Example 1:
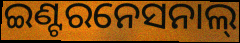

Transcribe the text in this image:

ଇଣ୍ଟରନେସନାଲ୍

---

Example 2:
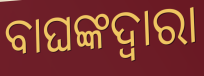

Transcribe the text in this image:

ବାଘଙ୍କଦ୍ୱାରା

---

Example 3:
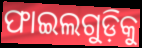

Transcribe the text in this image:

ଫାଇଲଗୁଡ଼ିକୁ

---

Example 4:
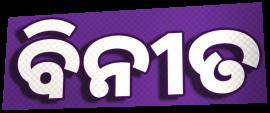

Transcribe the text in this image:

ବିନୀତ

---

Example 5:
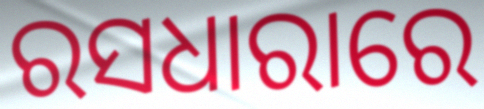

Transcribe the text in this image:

ରସଧାରାରେ